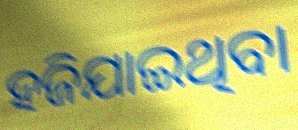
ହଜିଯାଇଥିବା